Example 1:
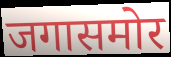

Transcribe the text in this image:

जगासमोर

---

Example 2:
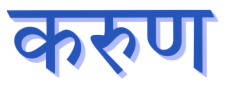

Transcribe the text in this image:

करुण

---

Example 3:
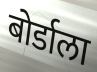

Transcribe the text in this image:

बोर्डाला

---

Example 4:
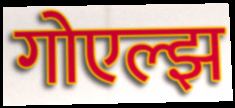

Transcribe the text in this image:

गोएल्झ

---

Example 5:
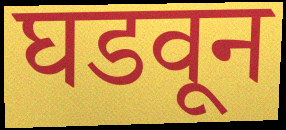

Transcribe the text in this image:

घडवून